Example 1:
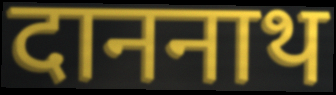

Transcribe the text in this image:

दाननाथ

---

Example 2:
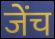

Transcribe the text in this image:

जेंच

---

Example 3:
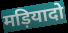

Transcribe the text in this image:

मड़ियादो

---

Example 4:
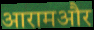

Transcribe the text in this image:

आरामऔर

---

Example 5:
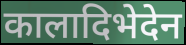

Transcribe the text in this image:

कालादिभेदेन